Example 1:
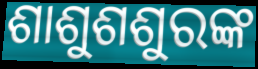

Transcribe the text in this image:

ଶାଶୁଶଶୁରଙ୍କ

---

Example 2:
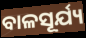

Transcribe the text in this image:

ବାଳସୂର୍ଯ୍ୟ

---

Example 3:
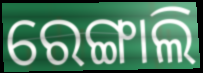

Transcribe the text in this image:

ରେଙ୍ଗାଲି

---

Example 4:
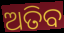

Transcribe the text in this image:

ଅତିବ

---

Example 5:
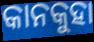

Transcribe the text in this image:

କାନକୁହା